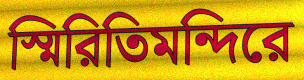
স্মিরিতিমন্দিরে